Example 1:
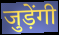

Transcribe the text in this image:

जुड़ेंगी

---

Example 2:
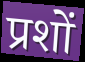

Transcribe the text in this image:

प्रशों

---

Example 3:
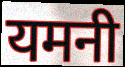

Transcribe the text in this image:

यमनी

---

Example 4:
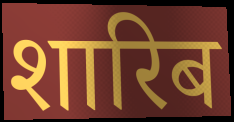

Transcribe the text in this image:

शारिब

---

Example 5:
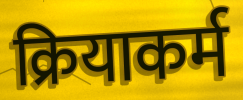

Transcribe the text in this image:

क्रियाकर्म